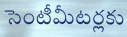
సెంటీమీటర్లకు